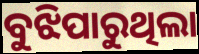
ବୁଝିପାରୁଥିଲା